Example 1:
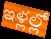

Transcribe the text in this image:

ఇళ్లల్లో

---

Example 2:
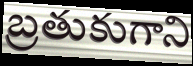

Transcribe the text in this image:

బ్రతుకుగాని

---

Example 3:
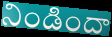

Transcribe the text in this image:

నిండిందా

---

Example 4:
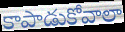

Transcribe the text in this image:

కాపాడుకోవాలా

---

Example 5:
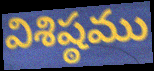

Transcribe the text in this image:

విశిష్ఠము